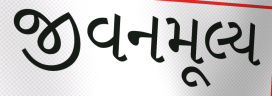
જીવનમૂલ્ય